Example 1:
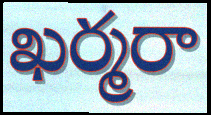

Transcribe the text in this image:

ఖర్మరా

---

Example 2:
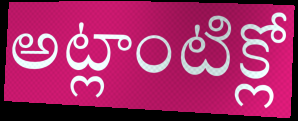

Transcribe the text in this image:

అట్లాంటిక్లో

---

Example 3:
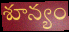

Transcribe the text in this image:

శూన్యం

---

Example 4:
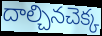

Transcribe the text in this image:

దాల్చినచెక్క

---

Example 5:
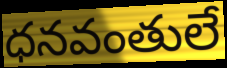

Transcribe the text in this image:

ధనవంతులే